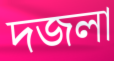
দজলা